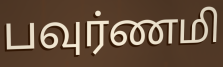
பவுர்ணமி